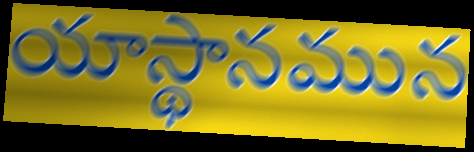
యాస్థానమున